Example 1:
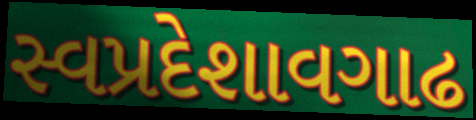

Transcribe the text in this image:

સ્વપ્રદેશાવગાઢ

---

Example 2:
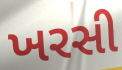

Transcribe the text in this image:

ખરસી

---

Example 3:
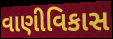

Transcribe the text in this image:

વાણીવિકાસ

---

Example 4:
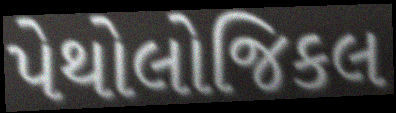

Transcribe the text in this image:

પેથોલોજિકલ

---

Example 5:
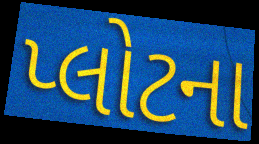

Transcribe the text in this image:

પ્લોટના